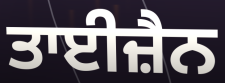
ਤਾਈਜ਼ੈਨ